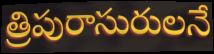
త్రిపురాసురులనే